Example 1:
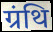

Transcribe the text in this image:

ग्रंथि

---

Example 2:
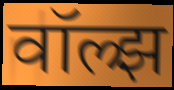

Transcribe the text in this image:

वॉल्झ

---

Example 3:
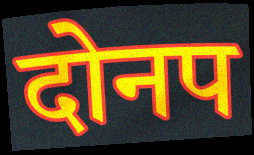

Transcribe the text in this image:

दोनप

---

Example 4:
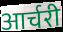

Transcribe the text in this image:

आर्चरी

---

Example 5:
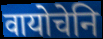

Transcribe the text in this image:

वायोचेनि